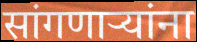
सांगणार्‍यांना